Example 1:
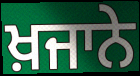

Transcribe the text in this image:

ਖ਼ਜਾਨੇ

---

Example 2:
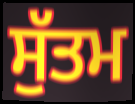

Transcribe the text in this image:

ਸੁੱਤਮ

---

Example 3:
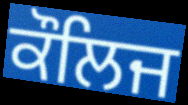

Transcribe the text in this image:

ਕੌਲਿਜ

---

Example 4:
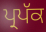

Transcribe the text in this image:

ਪ੍ਰਪੱਕ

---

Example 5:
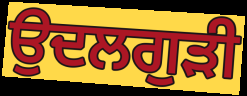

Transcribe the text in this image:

ਉਦਲਗੁੜੀ